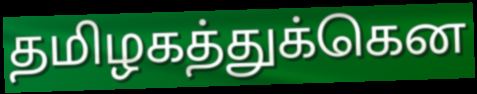
தமிழகத்துக்கென